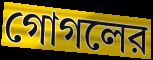
গোগলের